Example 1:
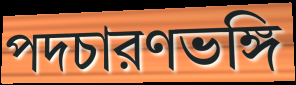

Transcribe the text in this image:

পদচারণভঙ্গি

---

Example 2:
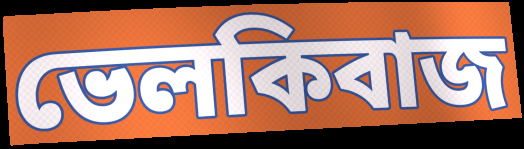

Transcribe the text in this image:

ভেলকিবাজ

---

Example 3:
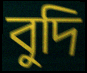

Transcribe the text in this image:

বুদি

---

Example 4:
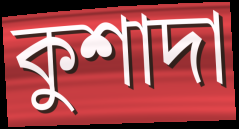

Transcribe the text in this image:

কুশাদা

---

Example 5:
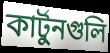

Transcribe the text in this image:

কার্টুনগুলি